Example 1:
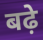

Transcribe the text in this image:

बढ़े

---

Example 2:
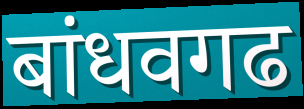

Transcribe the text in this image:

बांधवगढ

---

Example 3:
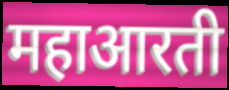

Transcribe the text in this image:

महाआरती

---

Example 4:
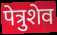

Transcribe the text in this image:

पेत्रुशेव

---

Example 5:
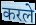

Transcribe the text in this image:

करले